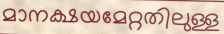
മാനക്ഷയമേറ്റതിലുള്ള